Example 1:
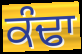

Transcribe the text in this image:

ਕੰਢਾ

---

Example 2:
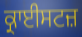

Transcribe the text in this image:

ਕ੍ਰਾਈਸਟਜ਼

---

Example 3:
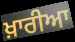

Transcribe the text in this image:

ਖ਼ਾਰੀਆ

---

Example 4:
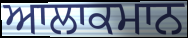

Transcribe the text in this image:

ਆਲਾਕਮਾਨ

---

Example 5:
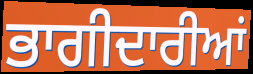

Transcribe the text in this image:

ਭਾਗੀਦਾਰੀਆਂ